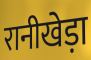
रानीखेड़ा